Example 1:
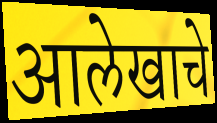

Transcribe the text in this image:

आलेखाचे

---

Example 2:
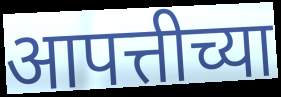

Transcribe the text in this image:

आपत्तीच्या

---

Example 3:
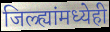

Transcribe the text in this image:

जिल्ह्यांमध्येही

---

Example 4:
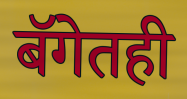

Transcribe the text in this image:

बॅगेतही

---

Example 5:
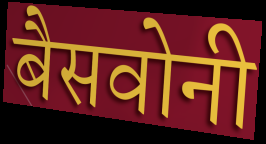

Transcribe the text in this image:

बैसवोनी